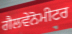
ਗੈਲਵੇਨੋਮੀਟਰ